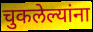
चुकलेल्यांना